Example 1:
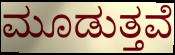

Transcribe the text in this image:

ಮೂಡುತ್ತವೆ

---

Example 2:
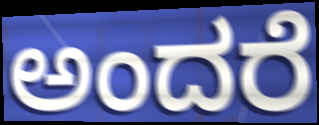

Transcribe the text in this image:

ಅಂದರೆ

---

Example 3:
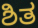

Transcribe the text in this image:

ಶಿತ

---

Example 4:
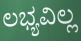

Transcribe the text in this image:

ಲಭ್ಯವಿಲ್ಲ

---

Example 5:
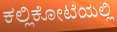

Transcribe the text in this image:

ಕಲ್ಲಿಕೋಟೆಯಲ್ಲಿ